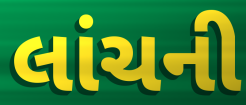
લાંચની